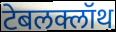
टेबलक्लॉथ